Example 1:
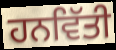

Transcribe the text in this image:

ਹਨਵਿੱਤੀ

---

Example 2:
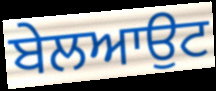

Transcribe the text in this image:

ਬੇਲਆਉਟ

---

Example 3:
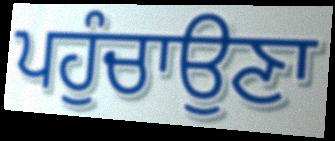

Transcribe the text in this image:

ਪਹੁੰਚਾਉਣਾ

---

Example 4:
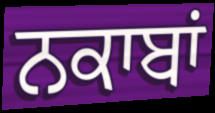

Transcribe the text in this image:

ਨਕਾਬਾਂ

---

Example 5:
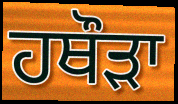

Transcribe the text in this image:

ਹਥੌੜਾ